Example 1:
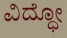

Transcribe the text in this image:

ವಿದ್ಧೋ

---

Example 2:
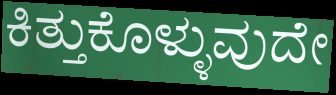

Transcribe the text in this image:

ಕಿತ್ತುಕೊಳ್ಳುವುದೇ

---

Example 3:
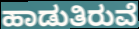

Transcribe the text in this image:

ಹಾಡುತಿರುವೆ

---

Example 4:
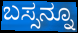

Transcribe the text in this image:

ಬಸ್ಸನ್ನೂ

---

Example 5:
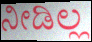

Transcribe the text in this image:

ನೀಡಿಲ್ಲ